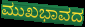
ಮುಖಭಾವದ